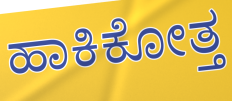
ಹಾಕಿಕೋತ್ತ